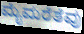
ಮೈಮರೆತೆವು